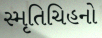
સ્મૃતિચિહનો